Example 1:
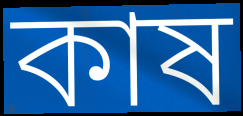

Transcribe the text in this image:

কাষ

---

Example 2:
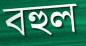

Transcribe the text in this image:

বহুল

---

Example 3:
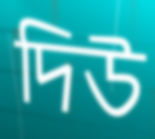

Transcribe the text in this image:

দিউ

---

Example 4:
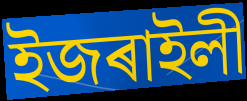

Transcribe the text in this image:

ইজৰাইলী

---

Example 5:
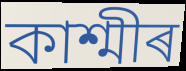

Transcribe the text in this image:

কাশ্মীৰ